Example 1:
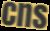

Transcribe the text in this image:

cns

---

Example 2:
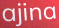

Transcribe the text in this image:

ajina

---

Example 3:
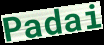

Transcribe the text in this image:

Padai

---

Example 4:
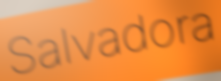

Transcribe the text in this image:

Salvadora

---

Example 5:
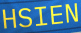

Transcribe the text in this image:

HSIEN